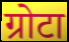
ग्रोटा